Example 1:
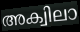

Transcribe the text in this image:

അക്വിലാ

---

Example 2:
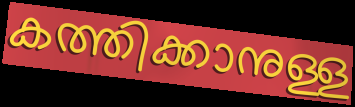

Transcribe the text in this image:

കത്തിക്കാനുള്ള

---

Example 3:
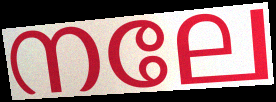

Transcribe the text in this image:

നലേ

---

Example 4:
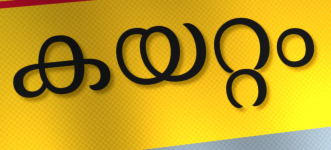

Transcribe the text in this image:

കയറ്റം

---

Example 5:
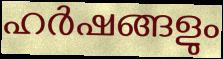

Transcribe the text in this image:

ഹർഷങ്ങളും